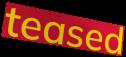
teased